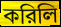
করিলি